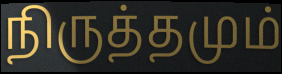
நிருத்தமும்